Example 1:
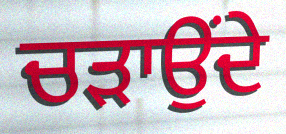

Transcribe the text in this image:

ਚੜਾਉਂਦੇ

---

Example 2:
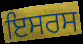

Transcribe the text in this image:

ਇਸਰਸ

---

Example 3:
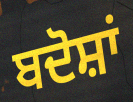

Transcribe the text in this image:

ਬਦੋਸ਼ਾਂ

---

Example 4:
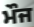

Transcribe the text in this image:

ਮੌਜ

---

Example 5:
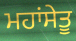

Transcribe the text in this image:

ਮਹਾਂਸੇਤੂ